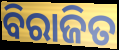
ବିରାଜିତ